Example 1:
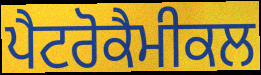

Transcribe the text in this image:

ਪੈਟਰੋਕੈਮੀਕਲ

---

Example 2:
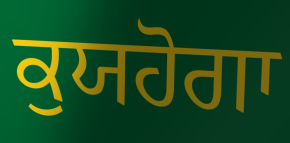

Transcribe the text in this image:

ਕੁਯਹੋਗਾ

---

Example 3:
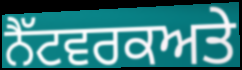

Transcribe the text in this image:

ਨੈੱਟਵਰਕਅਤੇ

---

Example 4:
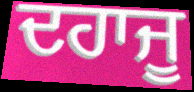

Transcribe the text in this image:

ਦਹਾਜੂ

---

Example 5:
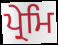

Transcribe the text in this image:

ਪ੍ਰੇਮਿ